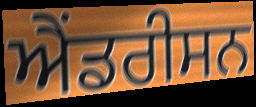
ਐਂਡਰੀਸਨ